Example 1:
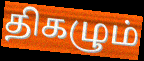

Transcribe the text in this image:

திகழும்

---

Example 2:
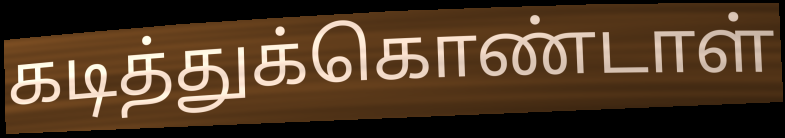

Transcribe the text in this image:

கடித்துக்கொண்டாள்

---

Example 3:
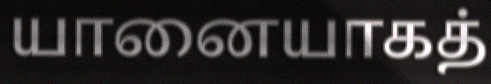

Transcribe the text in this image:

யானையாகத்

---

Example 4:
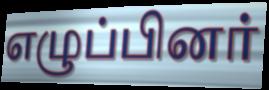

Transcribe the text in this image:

எழுப்பினர்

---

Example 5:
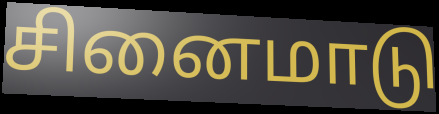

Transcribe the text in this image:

சினைமாடு